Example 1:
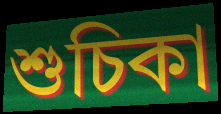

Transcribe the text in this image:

শুচিকা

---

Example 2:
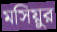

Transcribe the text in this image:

মসিয়ুর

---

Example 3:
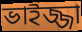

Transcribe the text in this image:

ভাইজ্জা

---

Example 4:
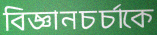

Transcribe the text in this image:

বিজ্ঞানচর্চাকে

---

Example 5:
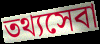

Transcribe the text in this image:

তথ্যসেবা